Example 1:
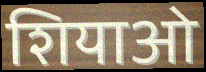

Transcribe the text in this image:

शियाओ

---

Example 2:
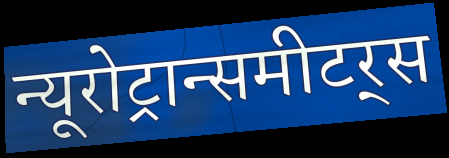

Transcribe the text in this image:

न्यूरोट्रान्समीटर्स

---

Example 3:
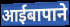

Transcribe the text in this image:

आईबापाने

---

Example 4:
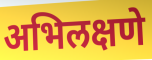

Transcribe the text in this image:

अभिलक्षणे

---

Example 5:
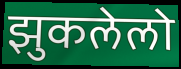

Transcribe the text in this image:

झुकलेलो